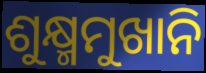
ଶୁକ୍ଷ୍ମମୁଖାନି